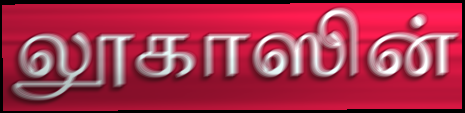
லூகாஸின்